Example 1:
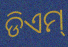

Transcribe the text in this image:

ଡିଏମ୍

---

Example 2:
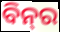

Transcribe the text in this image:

ବିନ୍‍ର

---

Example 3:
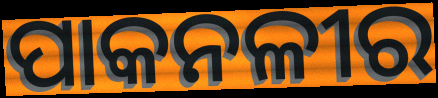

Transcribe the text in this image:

ପାକନଳୀର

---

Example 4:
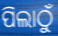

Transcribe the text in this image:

ପିଲାଠୁଁ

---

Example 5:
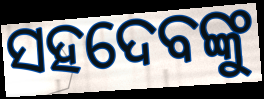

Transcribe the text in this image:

ସହଦେବଙ୍କୁ